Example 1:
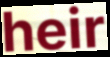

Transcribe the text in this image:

heir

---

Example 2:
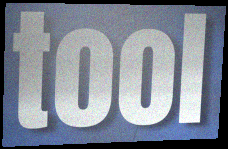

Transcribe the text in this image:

tool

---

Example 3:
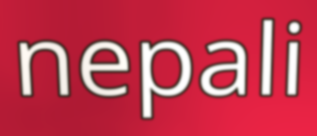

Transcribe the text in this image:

nepali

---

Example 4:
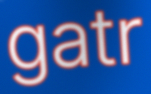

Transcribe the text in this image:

gatr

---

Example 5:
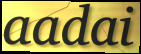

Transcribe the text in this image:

aadai